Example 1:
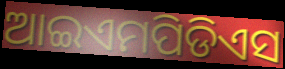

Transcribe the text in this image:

ଆଇଏମପିଡିଏସ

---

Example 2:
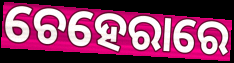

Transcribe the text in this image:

ଚେହେରାରେ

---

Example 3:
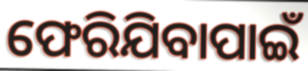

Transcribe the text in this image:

ଫେରିଯିବାପାଇଁ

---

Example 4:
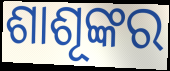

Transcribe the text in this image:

ଶାଶୂଙ୍କର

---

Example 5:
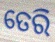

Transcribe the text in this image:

ତେରି